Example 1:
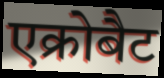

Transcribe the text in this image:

एक्रोबैट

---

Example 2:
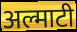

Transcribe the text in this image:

अल्माटी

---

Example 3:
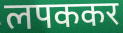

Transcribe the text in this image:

लपककर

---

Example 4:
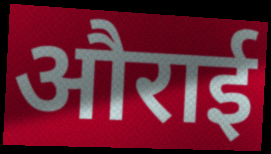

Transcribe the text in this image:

औराई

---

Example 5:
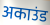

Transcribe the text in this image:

अकाउंड